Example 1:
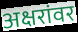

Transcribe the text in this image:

अक्षरांवर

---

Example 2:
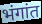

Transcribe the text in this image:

भंगांत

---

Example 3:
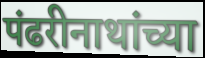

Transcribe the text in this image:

पंढरीनाथांच्या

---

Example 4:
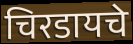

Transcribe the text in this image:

चिरडायचे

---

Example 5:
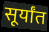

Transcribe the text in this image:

सूर्यांत